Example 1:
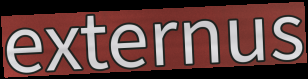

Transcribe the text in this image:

externus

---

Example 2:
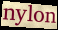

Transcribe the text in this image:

nylon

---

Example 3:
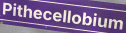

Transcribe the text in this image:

Pithecellobium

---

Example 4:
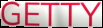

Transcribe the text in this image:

GETTY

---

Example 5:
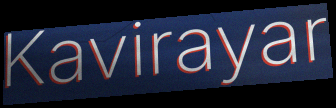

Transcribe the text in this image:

Kavirayar